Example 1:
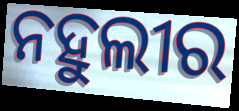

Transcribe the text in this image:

ନହୁଲୀର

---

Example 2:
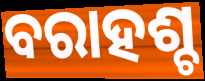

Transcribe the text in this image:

ବରାହଶ୍ଚ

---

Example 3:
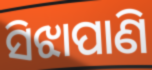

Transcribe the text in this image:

ସିଝାପାଣି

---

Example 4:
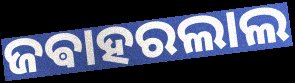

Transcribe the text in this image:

ଜଵାହରଲାଲ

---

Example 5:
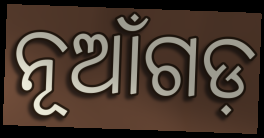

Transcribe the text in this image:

ନୂଆଁଗଡ଼